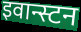
इवान्स्टन